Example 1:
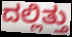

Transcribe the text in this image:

ದಲ್ಲಿತ್ತು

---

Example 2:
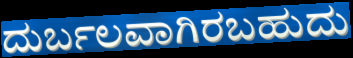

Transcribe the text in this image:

ದುರ್ಬಲವಾಗಿರಬಹುದು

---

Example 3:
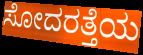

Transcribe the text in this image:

ಸೋದರತ್ತೆಯ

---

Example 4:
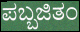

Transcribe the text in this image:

ಪಬ್ಬಜಿತಂ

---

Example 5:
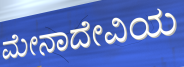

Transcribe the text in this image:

ಮೇನಾದೇವಿಯ